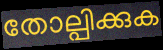
തോല്പിക്കുക